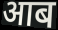
आब